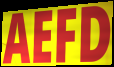
AEFD